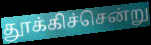
தூக்கிச்சென்று